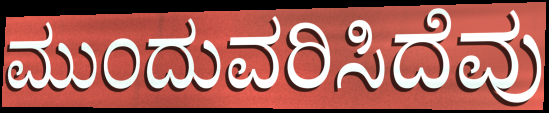
ಮುಂದುವರಿಸಿದೆವು